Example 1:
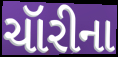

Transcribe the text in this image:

ચૉરીના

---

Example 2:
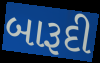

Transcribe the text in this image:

બારૂદી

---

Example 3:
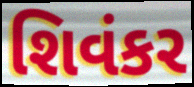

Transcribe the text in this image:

શિવંકર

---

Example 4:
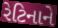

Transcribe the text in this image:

રેટિનાને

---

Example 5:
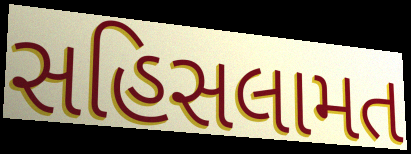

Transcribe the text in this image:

સહિસલામત